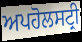
ਅਪਹੋਲਸਟ੍ਰੀ